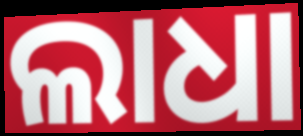
ଲାଧା